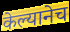
केल्यानेच